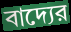
বাদ্যের